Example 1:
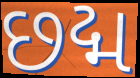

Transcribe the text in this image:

છદ્મ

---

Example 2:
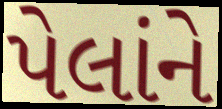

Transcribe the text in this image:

પેલાંને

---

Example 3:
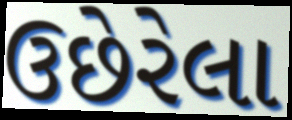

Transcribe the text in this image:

ઉછેરેલા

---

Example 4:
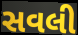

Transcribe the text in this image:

સવલી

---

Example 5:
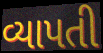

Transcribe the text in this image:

વ્યાપતી